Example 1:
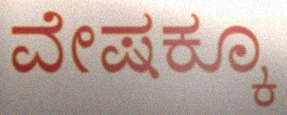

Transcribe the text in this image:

ವೇಷಕ್ಕೂ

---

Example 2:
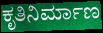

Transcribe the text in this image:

ಕೃತಿನಿರ್ಮಾಣ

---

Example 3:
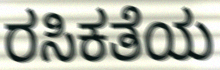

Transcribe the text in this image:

ರಸಿಕತೆಯ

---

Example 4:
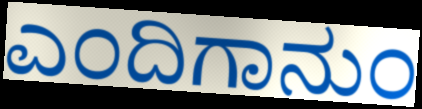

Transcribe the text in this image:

ಎಂದಿಗಾನುಂ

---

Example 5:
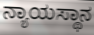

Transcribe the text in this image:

ನ್ಯಾಯಸ್ಥಾನ